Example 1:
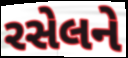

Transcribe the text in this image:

રસેલને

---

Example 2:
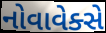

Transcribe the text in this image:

નોવાવેક્સે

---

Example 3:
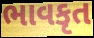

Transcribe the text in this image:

ભાવકૃત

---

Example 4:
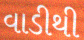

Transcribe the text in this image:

વાડીથી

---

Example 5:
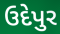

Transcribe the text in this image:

ઉદેપુર